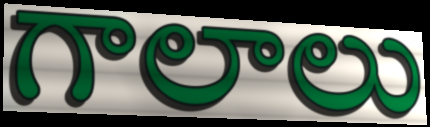
గాలాలు